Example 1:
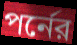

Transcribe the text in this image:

পর্নের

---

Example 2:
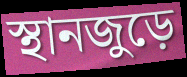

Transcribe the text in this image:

স্থানজুড়ে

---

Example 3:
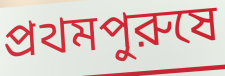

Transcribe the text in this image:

প্রথমপুরুষে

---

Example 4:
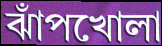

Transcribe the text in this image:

ঝাঁপখোলা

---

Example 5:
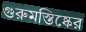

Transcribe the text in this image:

গুরুমস্তিষ্কের